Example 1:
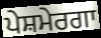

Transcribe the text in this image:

ਪੇਸ਼ਮੇਰਗਾ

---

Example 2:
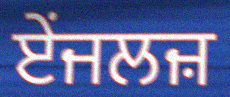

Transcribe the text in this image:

ਏਂਜਲਜ਼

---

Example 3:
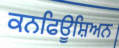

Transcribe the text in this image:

ਕਨਫਿਊਸ਼ਿਅਨ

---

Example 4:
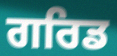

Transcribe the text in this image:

ਗਰਿਡ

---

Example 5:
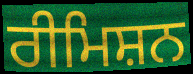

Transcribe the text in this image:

ਰੀਮਿਸ਼ਨ